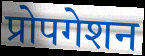
प्रोपगेशन